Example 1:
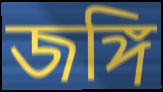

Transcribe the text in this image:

জঙ্গি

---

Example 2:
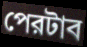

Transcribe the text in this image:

পেরটাব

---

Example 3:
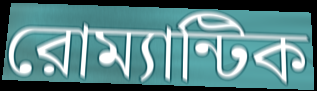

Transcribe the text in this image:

রোম্যান্টিক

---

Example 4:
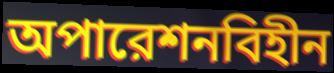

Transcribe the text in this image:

অপারেশনবিহীন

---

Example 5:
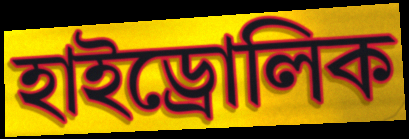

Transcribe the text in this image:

হাইড্রোলিক